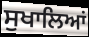
ਸੁਖਾਲਿਆਂ